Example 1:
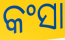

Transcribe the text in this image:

କଂସା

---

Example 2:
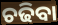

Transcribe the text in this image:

ଚଢିବା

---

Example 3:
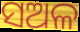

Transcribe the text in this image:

ସଅଳ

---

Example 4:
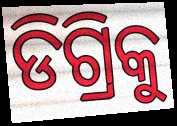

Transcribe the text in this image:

ଡିଗ୍ରିକୁ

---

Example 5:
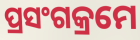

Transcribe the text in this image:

ପ୍ରସଂଗକ୍ରମେ